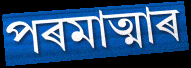
পৰমাত্মাৰ